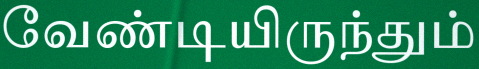
வேண்டியிருந்தும்